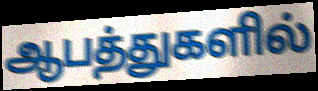
ஆபத்துகளில்